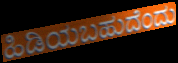
ಹಿಡಿಯಬಹುದೆಂದು